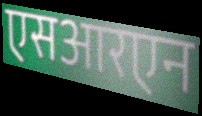
एसआरएन